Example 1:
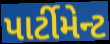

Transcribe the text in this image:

પાર્ટીમેન્ટ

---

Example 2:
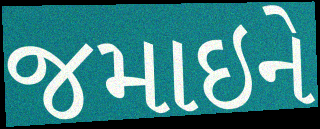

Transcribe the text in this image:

જમાઇને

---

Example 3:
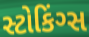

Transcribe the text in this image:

સ્ટોકિંગ્સ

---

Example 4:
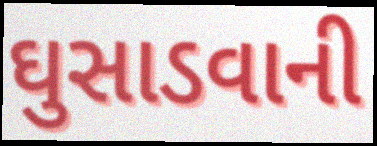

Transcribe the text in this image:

ઘુસાડવાની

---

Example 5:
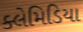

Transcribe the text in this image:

ક્લેમિડિયા